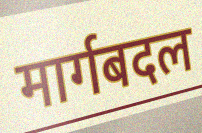
मार्गबदल